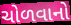
ચોળવાનો